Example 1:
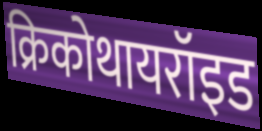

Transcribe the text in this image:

क्रिकोथायरॉइड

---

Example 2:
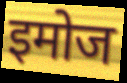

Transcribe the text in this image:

इमोज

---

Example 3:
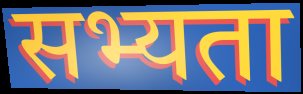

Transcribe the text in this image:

सभ्यता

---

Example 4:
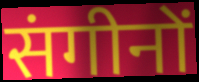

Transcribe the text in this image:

संगीनों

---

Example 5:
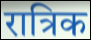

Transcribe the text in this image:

रात्रिक